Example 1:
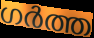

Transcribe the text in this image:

ഗർത്ത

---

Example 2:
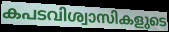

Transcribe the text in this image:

കപടവിശ്വാസികളുടെ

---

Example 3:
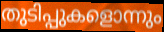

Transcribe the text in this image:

തുടിപ്പുകളൊന്നും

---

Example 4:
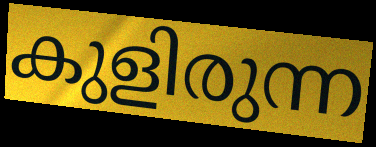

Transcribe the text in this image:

കുളിരുന്ന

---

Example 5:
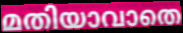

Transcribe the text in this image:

മതിയാവാതെ